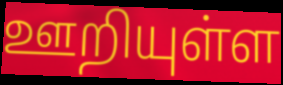
ஊறியுள்ள